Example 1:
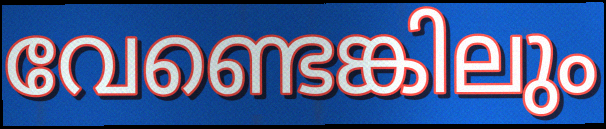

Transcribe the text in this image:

വേണ്ടെങ്കിലും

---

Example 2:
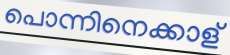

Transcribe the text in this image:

പൊന്നിനെക്കാള്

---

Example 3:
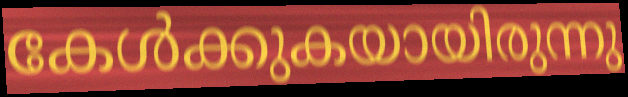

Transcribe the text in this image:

കേൾക്കുകയായിരുന്നു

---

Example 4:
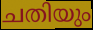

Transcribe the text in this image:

ചതിയും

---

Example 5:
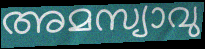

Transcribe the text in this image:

അമസ്യാവു